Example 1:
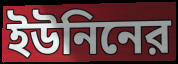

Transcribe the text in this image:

ইউনিনের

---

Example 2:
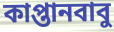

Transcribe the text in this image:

কাপ্তানবাবু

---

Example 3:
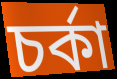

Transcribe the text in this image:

চর্কা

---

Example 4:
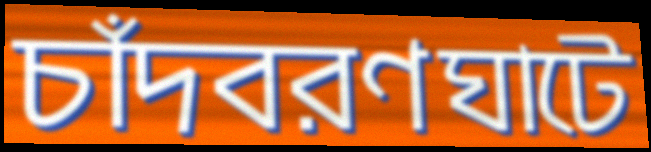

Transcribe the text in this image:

চাঁদবরণঘাটে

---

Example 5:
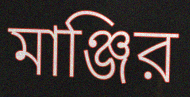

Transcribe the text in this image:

মাঞ্জির